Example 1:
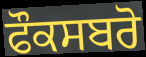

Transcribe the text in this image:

ਫੌਕਸਬਰੋ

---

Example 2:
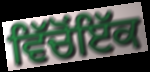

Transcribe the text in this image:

ਵਿੱਚੋਂਇੱਕ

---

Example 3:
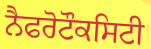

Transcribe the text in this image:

ਨੈਫਰੋਟੌਕਸਿਟੀ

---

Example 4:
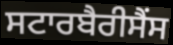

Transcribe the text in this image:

ਸਟਾਰਬੈਰੀਸੈਂਸ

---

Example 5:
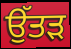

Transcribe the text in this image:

ਉੱਤੜ